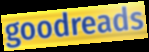
goodreads